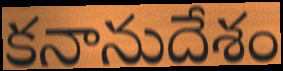
కనానుదేశం